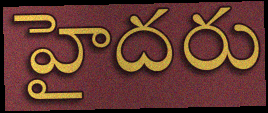
హైదరు